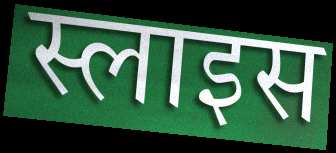
स्लाइस